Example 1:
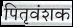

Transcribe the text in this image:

पितृवंशक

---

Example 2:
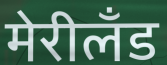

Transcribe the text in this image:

मेरीलँड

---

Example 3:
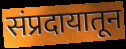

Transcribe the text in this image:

संप्रदायातून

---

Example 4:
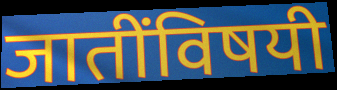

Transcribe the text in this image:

जातींविषयी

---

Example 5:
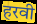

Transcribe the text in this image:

हरवी